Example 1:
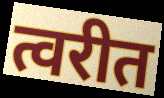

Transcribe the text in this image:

त्वरीत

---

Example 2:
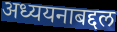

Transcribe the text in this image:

अध्ययनाबद्दल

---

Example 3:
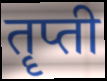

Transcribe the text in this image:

तॄप्ती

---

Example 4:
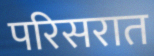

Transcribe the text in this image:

परिसरात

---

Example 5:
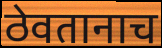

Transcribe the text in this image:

ठेवतानाच